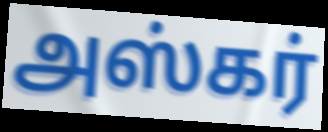
அஸ்கர்